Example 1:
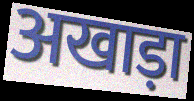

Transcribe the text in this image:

अखाड़ा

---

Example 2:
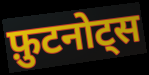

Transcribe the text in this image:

फ़ुटनोट्स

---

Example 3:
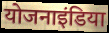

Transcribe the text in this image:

योजनाइंडिया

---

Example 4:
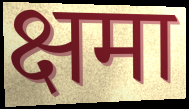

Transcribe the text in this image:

क्षमा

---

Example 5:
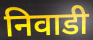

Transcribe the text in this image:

निवाडी